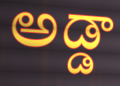
అడ్డా